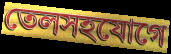
তেলসহযোগে